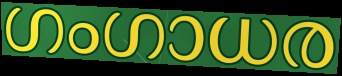
ഗംഗാധര